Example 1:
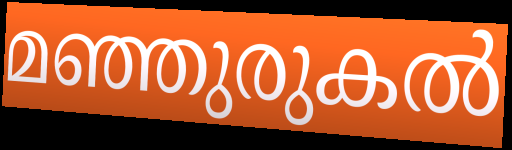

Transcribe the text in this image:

മഞ്ഞുരുകൽ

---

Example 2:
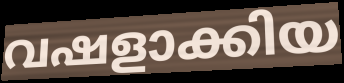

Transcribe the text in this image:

വഷളാക്കിയ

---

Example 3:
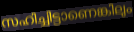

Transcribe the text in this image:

സഹിച്ചിട്ടാണെങ്കിലും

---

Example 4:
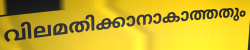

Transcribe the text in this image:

വിലമതിക്കാനാകാത്തതും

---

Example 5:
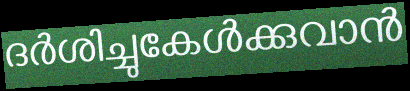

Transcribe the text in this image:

ദർശിച്ചുകേൾക്കുവാൻ